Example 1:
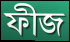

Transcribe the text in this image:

ফীজ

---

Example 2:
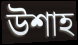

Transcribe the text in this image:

উশাহ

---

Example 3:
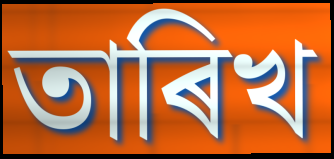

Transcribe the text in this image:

তাৰিখ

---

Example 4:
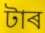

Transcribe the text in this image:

টাৰ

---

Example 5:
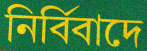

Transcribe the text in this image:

নিৰ্বিবাদে